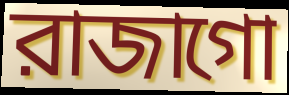
রাজাগো